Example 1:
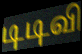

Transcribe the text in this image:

டிடிவி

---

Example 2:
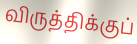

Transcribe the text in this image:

விருத்திக்குப்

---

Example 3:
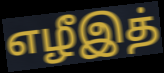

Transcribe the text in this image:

எழீஇத்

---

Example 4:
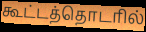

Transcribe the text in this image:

கூட்டத்தொடரில்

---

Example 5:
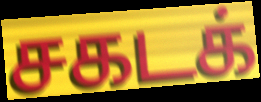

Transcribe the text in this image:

சகடக்